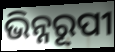
ଭିନ୍ନରୂପୀ